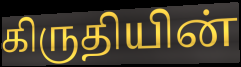
கிருதியின்